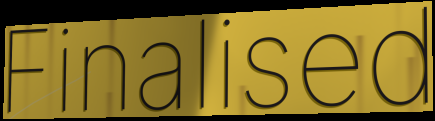
Finalised